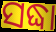
ସଦ୍ଧା